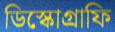
ডিস্কোগ্রাফি